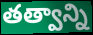
తత్వాన్ని